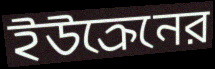
ইউক্রেনের